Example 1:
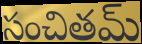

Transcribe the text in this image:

సంచితమ్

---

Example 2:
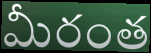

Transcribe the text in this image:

మీరంత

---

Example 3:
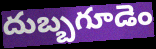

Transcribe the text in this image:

దుబ్బగూడెం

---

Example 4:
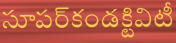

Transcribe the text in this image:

సూపర్‌కండక్టివిటీ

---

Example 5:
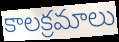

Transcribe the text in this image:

కాలక్రమాలు